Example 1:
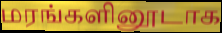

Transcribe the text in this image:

மரங்களினூடாக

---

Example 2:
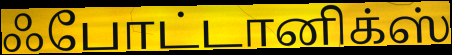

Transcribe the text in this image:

ஃபோட்டானிக்ஸ்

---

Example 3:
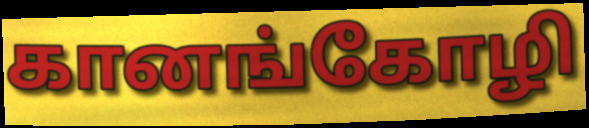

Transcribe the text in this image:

கானங்கோழி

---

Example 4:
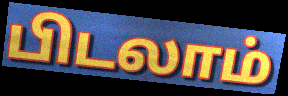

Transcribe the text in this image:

பிடலாம்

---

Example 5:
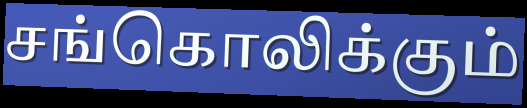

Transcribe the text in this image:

சங்கொலிக்கும்